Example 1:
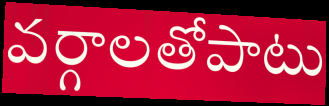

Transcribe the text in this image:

వర్గాలతోపాటు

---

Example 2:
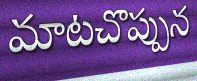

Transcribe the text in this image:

మాటచొప్పున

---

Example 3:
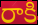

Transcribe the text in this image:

రాకి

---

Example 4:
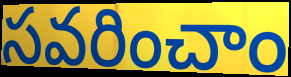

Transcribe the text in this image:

సవరించాం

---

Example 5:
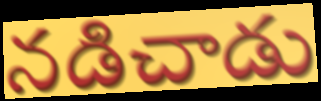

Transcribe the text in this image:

నడిచాడు